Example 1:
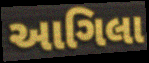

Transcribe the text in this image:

આગિલા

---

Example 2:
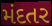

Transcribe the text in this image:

મંદતર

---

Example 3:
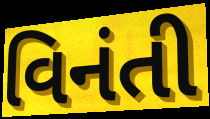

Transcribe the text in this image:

વિનંતી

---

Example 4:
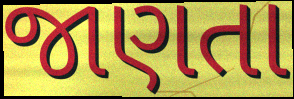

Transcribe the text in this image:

જાણતા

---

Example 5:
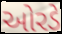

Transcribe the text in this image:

ઓરડે